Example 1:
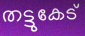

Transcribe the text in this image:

തട്ടുകേട്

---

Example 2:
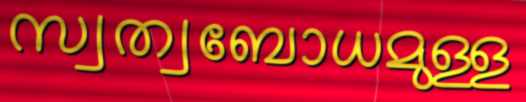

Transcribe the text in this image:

സ്വത്വബോധമുള്ള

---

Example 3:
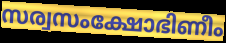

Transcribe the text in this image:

സര്വസംക്ഷോഭിണീം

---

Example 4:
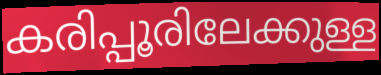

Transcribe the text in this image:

കരിപ്പൂരിലേക്കുള്ള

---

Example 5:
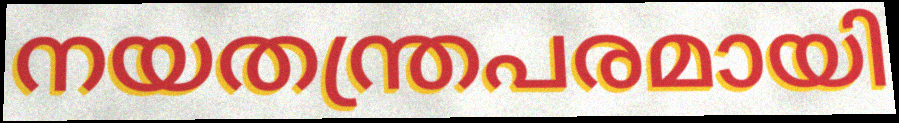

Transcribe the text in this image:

നയതന്ത്രപരമായി